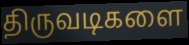
திருவடிகளை